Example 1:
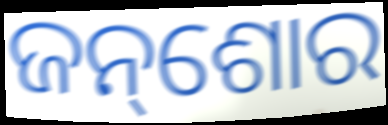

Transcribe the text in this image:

ଜନ୍‌ଶୋର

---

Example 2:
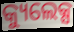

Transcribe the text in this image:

କ୍ୟୁଲେକ୍ସ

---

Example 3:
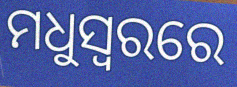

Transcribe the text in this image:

ମଧୁସ୍ୱରରେ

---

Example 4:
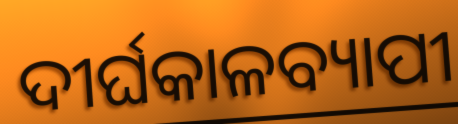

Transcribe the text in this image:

ଦୀର୍ଘକାଳବ୍ୟାପୀ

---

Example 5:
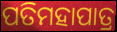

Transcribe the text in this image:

ପତିମହାପାତ୍ର